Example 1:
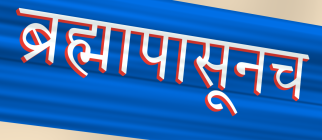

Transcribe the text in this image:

ब्रह्मापासूनच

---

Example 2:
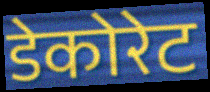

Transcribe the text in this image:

डेकोरेट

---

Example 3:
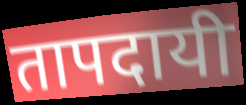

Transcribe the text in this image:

तापदायी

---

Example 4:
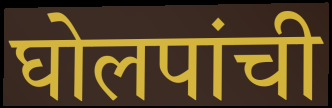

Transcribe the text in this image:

घोलपांची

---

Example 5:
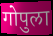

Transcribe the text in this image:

गोपुला